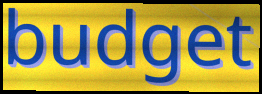
budget